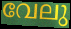
വേലു